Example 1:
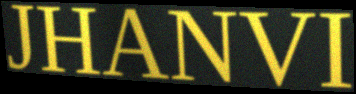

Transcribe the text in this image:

JHANVI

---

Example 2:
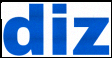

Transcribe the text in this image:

diz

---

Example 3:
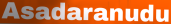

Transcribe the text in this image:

Asadaranudu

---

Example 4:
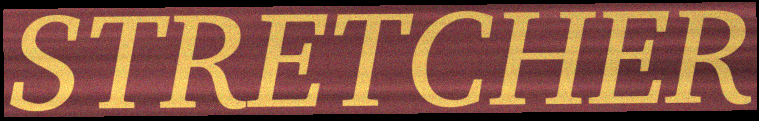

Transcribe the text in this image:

STRETCHER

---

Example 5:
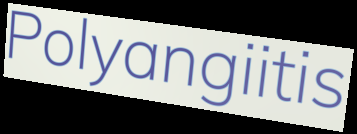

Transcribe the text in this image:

Polyangiitis